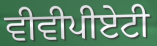
ਵੀਵੀਪੀਏਟੀ